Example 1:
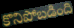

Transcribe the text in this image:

కొనిపోబడింది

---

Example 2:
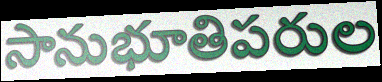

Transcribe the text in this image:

సానుభూతిపరుల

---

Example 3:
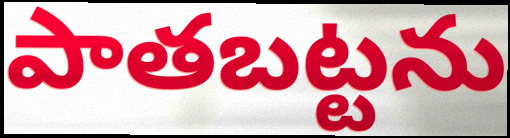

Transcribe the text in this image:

పాతబట్టను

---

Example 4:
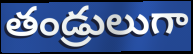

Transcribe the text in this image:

తండ్రులుగా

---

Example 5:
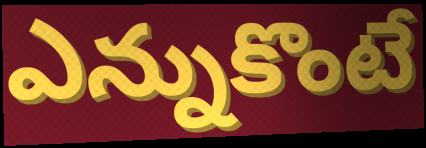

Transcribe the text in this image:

ఎన్నుకొంటే